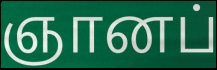
ஞானப்